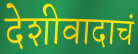
देशीवादाचं